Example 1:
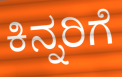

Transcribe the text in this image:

ಕಿನ್ನರಿಗೆ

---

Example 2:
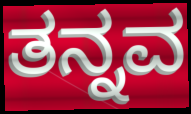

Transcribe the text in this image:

ತನ್ನವ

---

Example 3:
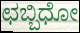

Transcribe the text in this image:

ಛಬ್ಬಿಧೋ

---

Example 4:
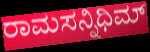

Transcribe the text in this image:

ರಾಮಸನ್ನಿಧಿಮ್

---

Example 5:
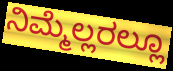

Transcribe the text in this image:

ನಿಮ್ಮೆಲ್ಲರಲ್ಲೂ